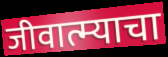
जीवात्म्याचा